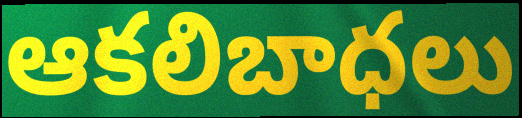
ఆకలిబాధలు